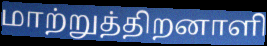
மாற்றுத்திறனாளி